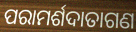
ପରାମର୍ଶଦାତାଗଣ